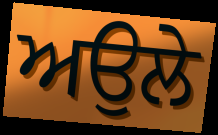
ਅਉਲੇ